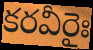
కరవీరైః